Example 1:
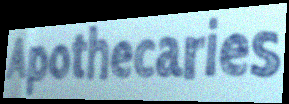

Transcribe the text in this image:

Apothecaries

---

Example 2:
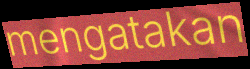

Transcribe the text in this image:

mengatakan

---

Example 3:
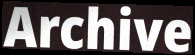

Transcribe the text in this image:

Archive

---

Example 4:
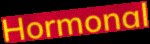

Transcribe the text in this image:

Hormonal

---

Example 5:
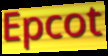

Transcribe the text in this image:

Epcot